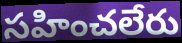
సహించలేరు